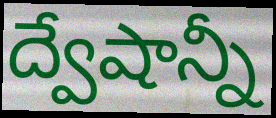
ద్వేషాన్నీ